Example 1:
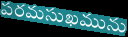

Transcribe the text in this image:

పరమసుఖమును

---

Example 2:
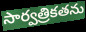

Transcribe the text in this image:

సార్వత్రికతను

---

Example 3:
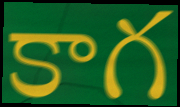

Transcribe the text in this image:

కాగ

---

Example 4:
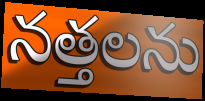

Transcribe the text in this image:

నత్తలను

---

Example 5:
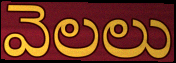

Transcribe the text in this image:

వెలలు